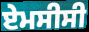
ਏਮਸੀਸੀ